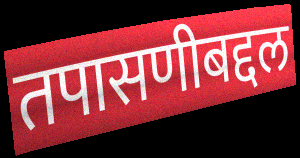
तपासणीबद्दल